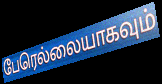
பேரெல்லையாகவும்